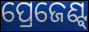
ପ୍ରେଜେଣ୍ଟ୍